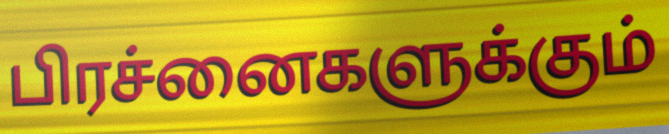
பிரச்னைகளுக்கும்